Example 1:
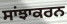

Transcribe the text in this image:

ਸਾਂਝਾਕਰਨ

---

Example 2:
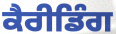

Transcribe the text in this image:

ਕੈਰੀਡਿੰਗ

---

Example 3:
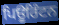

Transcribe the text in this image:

ਪਿਊਰਿੰਟਨ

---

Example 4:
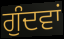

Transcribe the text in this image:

ਗੁੰਦਵਾਂ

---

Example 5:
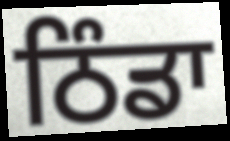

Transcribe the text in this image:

ਠਿੰਡਾ